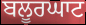
ਬਲੂਰਘਾਟ